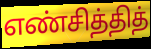
எண்சித்தித்